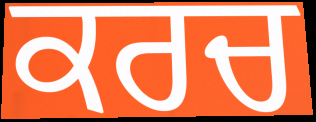
ਕਰਚ